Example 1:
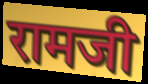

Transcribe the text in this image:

रामजी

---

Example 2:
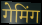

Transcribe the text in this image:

गेमिंग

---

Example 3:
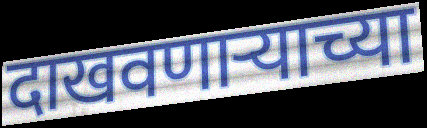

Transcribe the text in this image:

दाखवणाऱ्याच्या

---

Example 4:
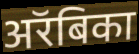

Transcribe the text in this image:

अरॅबिका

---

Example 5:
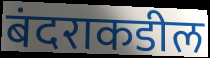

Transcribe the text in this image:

बंदराकडील